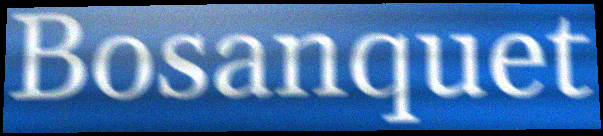
Bosanquet